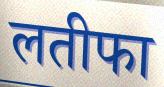
लतीफा